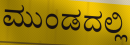
ಮುಂಡದಲ್ಲಿ